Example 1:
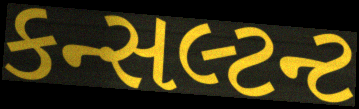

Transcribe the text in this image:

કન્સલ્ટન્ટ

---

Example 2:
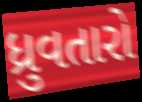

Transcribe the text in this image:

ધ્રુવતારો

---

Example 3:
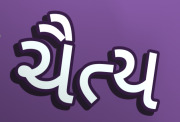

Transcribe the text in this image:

ચૈત્ય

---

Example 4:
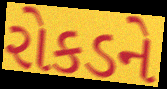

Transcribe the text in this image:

રોકડને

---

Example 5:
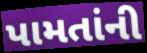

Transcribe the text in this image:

પામતાંની